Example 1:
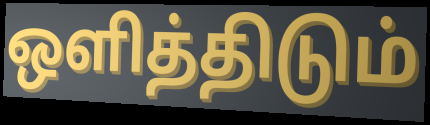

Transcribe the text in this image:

ஒளித்திடும்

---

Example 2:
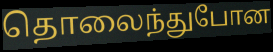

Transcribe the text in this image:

தொலைந்துபோன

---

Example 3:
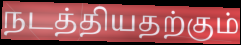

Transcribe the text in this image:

நடத்தியதற்கும்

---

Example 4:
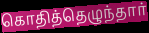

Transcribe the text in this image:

கொதித்தெழுந்தார்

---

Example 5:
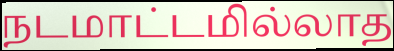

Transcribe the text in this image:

நடமாட்டமில்லாத